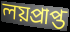
লয়প্রাপ্ত